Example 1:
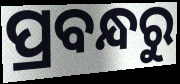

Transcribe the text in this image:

ପ୍ରବନ୍ଧରୁ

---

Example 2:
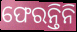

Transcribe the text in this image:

ଫେରନ୍ତିନି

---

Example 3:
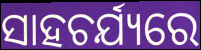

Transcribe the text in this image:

ସାହଚର୍ଯ୍ୟରେ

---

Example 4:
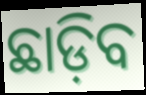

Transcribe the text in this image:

ଛାଡ଼ିବ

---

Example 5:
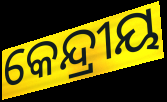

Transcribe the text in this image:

କେନ୍ଦ୍ରୀୟ